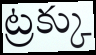
ట్రక్కు